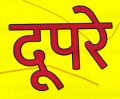
दूपरे